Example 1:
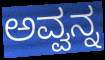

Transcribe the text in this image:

ಅವ್ವನ್ನ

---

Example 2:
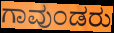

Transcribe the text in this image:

ಗಾವುಂಡರು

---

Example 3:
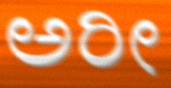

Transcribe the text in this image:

ಅರೀ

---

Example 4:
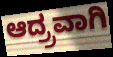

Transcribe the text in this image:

ಆದ್ರ್ರವಾಗಿ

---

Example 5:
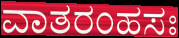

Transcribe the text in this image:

ವಾತರಂಹಸಃ